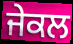
ਜੇਕਲ